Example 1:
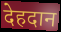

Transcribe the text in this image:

देहदान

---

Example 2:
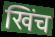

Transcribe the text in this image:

खिंच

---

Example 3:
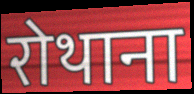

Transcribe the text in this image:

रोथाना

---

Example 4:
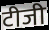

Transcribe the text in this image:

टीजी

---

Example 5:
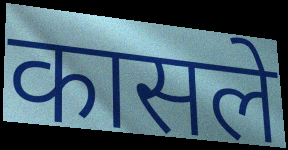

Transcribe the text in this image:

कासले